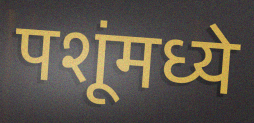
पशूंमध्ये